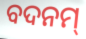
ବଦନମ୍